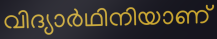
വിദ്യാർഥിനിയാണ്